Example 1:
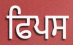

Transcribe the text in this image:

ਫਿਪਸ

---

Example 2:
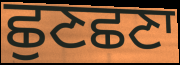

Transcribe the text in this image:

ਛੁਣਛਣਾ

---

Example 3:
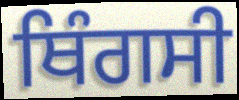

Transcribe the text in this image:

ਥਿੰਗਸੀ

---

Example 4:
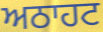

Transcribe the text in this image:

ਅਠਾਹਟ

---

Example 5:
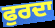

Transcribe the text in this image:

ਫੁਰਦਾ